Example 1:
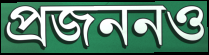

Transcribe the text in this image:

প্রজননও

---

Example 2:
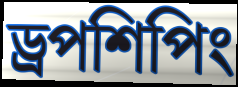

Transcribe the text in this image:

ড্রপশিপিং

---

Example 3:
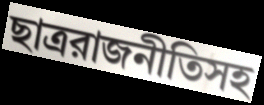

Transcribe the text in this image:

ছাত্ররাজনীতিসহ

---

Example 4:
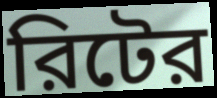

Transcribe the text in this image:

রিটের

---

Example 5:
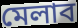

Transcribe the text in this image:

মেলাব